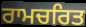
ਰਾਮਚਰਿਤ